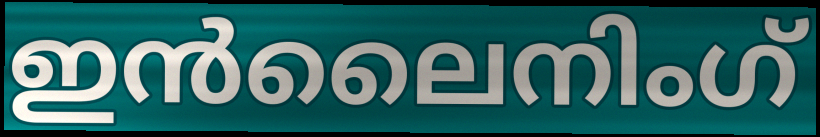
ഇൻലൈനിംഗ്